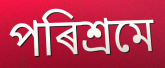
পৰিশ্ৰমে